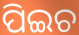
ପିଇଚ